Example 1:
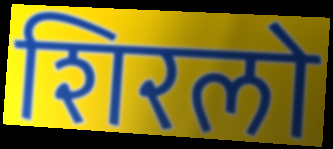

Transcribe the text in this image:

शिरलो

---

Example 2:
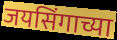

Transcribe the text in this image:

जयसिंगाच्या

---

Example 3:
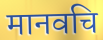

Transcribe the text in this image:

मानवचि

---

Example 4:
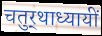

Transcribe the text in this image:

चतुर्थाध्यायीं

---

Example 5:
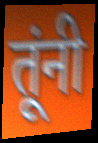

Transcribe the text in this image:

तूंनी